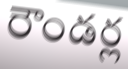
రౌండర్ల